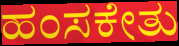
ಹಂಸಕೇತು